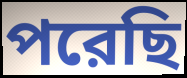
পরেছি